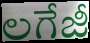
లగేజీ